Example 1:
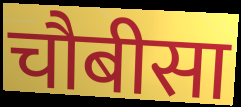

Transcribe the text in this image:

चौबीसा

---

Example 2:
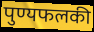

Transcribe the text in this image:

पुण्यफलकी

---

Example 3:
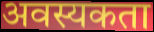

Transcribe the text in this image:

अवस्यकता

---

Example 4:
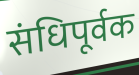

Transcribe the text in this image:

संधिपूर्वक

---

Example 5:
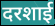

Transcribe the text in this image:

दरशाई